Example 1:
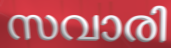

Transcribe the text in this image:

സവാരി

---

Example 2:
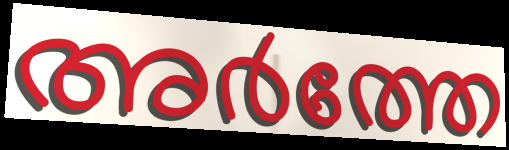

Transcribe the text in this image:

അർത്തേ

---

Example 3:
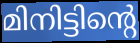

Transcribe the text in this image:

മിനിട്ടിന്റെ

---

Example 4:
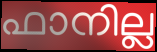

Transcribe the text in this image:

ഫാനില്ല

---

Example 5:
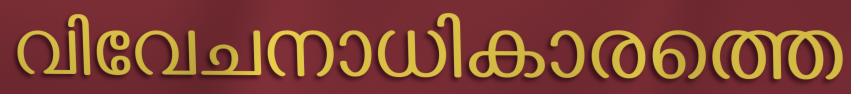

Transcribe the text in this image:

വിവേചനാധികാരത്തെ